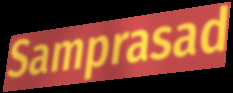
Samprasad